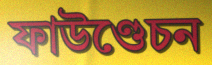
ফাউণ্ডেচন